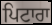
ਪਿਟਾਰਾ